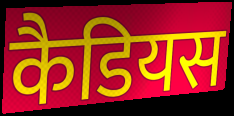
कैडियस